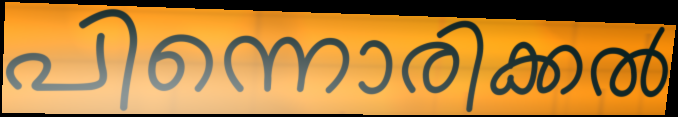
പിന്നൊരിക്കൽ